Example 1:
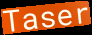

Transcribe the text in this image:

Taser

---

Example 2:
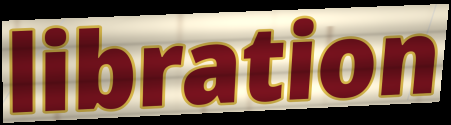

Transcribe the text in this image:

libration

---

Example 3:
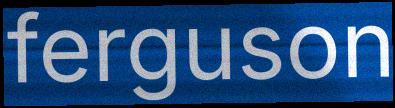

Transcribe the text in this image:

ferguson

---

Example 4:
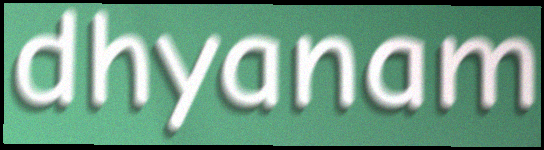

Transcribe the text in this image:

dhyanam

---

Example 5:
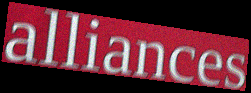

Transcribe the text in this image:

alliances